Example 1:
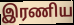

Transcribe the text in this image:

இரணிய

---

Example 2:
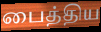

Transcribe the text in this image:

பைத்திய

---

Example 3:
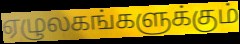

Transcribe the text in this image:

ஏழுலகங்களுக்கும்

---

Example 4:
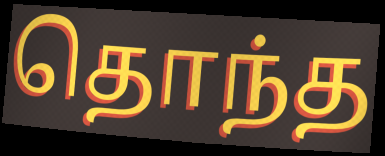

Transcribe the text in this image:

தொந்த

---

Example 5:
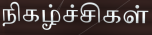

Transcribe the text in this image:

நிகழ்ச்சிகள்